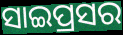
ସାଇପ୍ରସର